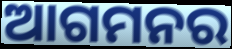
ଆଗମନର